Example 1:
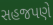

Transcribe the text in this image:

સહજપણે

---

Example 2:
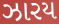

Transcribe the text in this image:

ઝારય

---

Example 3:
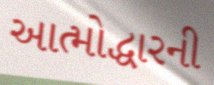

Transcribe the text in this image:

આત્મોદ્ધારની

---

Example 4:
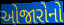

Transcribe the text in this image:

ઓજારોનો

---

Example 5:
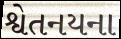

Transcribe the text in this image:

શ્વેતનયના